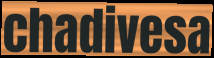
chadivesa